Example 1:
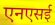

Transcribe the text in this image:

एनएसई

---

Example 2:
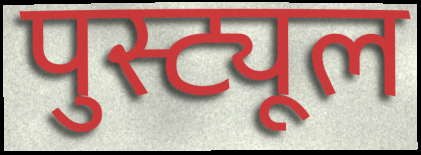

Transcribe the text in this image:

पुस्ट्यूल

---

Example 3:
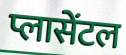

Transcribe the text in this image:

प्लासेंटल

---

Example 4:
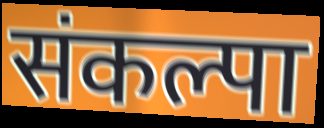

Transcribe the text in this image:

संकल्पा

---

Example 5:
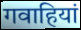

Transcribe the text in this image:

गवाहियां